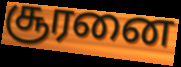
சூரனை